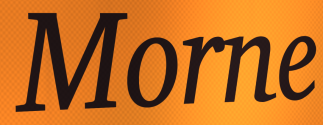
Morne